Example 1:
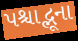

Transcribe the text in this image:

પશ્ચાદ્ભૂના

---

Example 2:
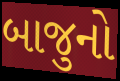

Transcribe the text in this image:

બાજુનો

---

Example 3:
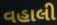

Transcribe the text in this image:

વહાલી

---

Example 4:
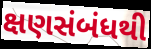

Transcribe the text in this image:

ક્ષણસંબંધથી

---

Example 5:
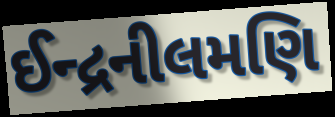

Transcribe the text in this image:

ઈન્દ્રનીલમણિ